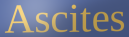
Ascites